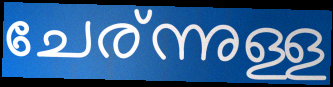
ചേര്ന്നുള്ള